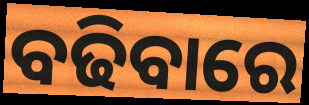
ବଢିବାରେ